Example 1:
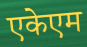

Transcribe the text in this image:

एकेएम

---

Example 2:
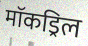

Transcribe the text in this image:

मॉकड्रिल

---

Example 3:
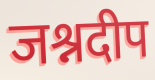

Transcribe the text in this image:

जश्नदीप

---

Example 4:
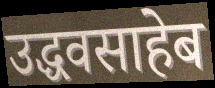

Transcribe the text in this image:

उद्धवसाहेब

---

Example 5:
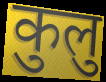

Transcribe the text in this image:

कुलु